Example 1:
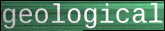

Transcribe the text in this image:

geological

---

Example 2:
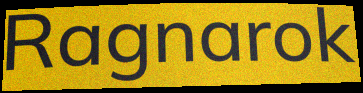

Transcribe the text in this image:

Ragnarok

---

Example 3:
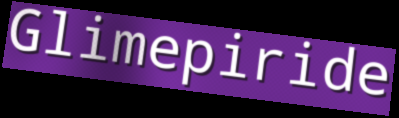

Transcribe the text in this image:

Glimepiride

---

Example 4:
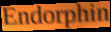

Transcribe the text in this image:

Endorphin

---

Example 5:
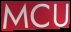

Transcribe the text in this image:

MCU